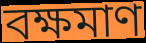
বক্ষমাণ